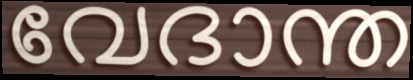
വേദാന്ത